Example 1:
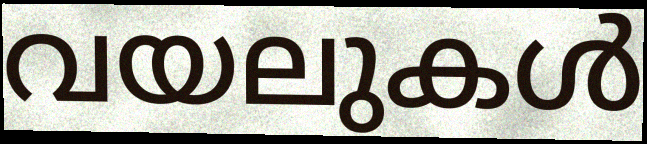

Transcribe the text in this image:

വയലുകൾ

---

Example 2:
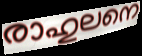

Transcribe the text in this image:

രാഹുലനെ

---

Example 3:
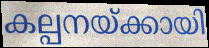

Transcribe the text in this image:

കല്പനയ്ക്കായി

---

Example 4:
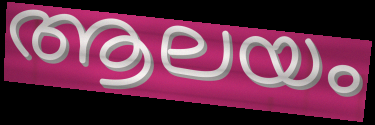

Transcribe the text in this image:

ആലയം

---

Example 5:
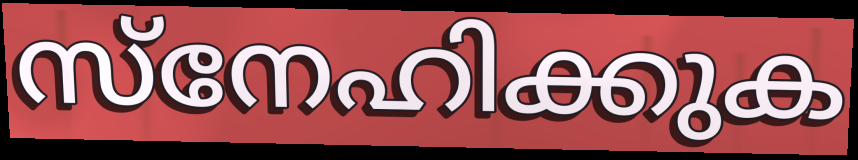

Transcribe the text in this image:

സ്നേഹിക്കുക